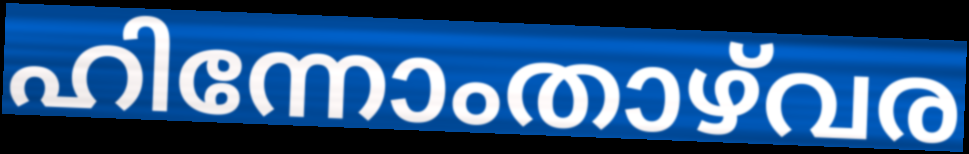
ഹിന്നോംതാഴ്‌വര